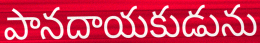
పానదాయకుడును